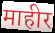
माहीर